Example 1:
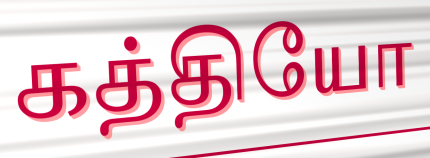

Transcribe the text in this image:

கத்தியோ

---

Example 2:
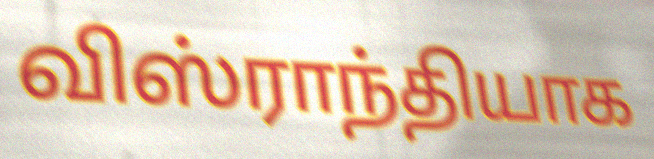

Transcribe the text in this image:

விஸ்ராந்தியாக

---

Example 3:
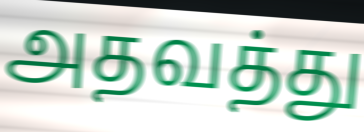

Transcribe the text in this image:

அதவத்து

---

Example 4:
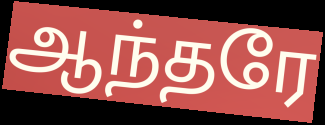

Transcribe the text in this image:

ஆந்தரே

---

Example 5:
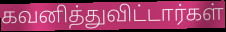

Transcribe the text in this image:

கவனித்துவிட்டார்கள்